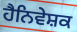
ਹੈਨਿਵੇਸ਼ਕ